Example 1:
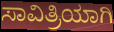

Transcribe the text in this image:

ಸಾವಿತ್ರಿಯಾಗಿ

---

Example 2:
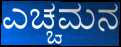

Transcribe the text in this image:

ಎಚ್ಚಮನ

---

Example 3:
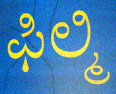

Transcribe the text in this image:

ಫಿಲ್ಮಿ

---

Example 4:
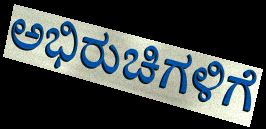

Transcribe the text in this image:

ಅಭಿರುಚಿಗಳಿಗೆ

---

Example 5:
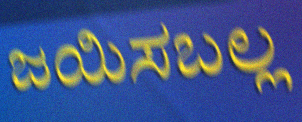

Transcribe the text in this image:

ಜಯಿಸಬಲ್ಲ